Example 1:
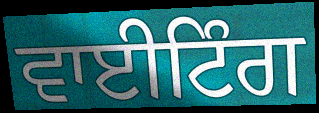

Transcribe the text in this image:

ਵਾਈਟਿੰਗ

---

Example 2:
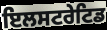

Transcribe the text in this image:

ਇਲਸਟਰੇਟਿਡ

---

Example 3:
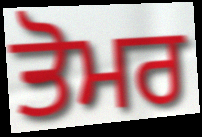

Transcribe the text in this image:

ਤੋਮਰ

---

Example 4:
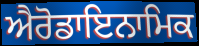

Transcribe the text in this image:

ਐਰੋਡਾਇਨਾਮਿਕ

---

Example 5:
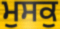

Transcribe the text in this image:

ਮੁਸਕੁ